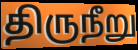
திருநீறு